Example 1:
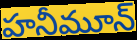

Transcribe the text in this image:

హనీమూన్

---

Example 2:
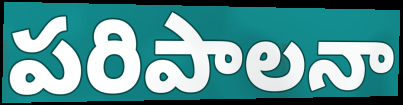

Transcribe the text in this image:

పరిపాలనా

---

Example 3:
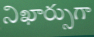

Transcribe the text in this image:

నిఖార్సుగా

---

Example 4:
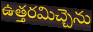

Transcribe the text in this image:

ఉత్తరమిచ్చెను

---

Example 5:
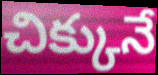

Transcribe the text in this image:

చిక్కునే